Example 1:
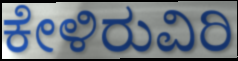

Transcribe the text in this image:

ಕೇಳಿರುವಿರಿ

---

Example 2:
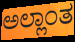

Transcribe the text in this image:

ಅಲ್ಲಾಂತ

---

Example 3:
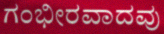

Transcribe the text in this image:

ಗಂಭೀರವಾದವು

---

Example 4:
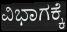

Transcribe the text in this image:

ವಿಭಾಗಕ್ಕೆ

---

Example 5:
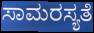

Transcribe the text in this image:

ಸಾಮರಸ್ಯತೆ